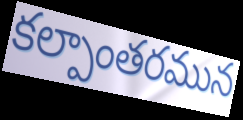
కల్పాంతరమున